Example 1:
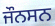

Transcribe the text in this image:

ਜੌਨਸਨ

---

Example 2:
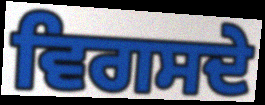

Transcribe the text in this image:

ਵਿਗਸਦੇ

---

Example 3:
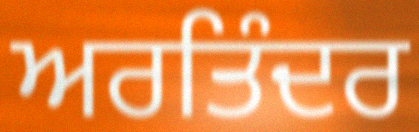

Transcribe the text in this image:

ਅਰਤਿੰਦਰ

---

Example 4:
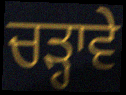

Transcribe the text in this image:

ਚੜ੍ਹਾਵੇ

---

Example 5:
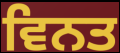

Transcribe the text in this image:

ਵਿਨਤ